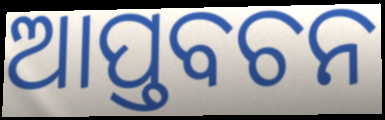
ଆପ୍ତବଚନ